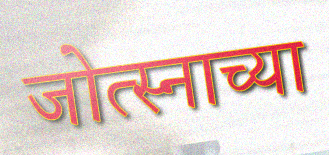
जोत्स्नाच्या